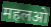
महलओ